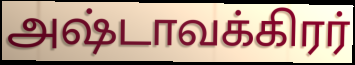
அஷ்டாவக்கிரர்